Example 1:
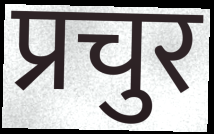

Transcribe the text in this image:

प्रचुर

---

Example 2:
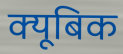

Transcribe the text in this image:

क्यूबिक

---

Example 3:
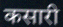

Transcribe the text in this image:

कसारी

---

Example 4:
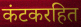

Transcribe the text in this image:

कंटकरहित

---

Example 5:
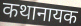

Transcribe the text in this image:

कथानायक